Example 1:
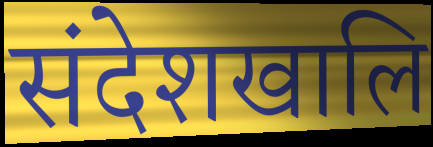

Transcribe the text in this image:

संदेशखालि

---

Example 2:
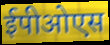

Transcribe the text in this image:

ईपीओएस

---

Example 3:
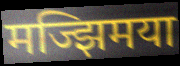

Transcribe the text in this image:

मज्झिमया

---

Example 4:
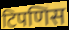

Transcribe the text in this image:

टिपणिस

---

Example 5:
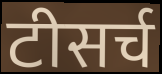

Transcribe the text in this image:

टीसर्च